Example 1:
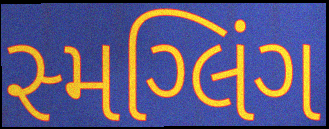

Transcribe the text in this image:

સ્મગ્લિંગ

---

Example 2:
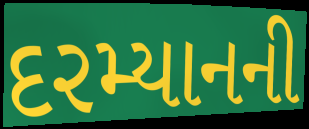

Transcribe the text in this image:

દરમ્યાનની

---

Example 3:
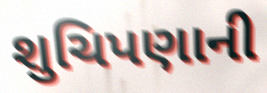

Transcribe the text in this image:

શુચિપણાની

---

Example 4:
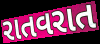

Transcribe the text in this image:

રાતવરાત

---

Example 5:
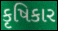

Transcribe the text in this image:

કૃષિકાર